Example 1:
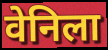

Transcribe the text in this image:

वेनिला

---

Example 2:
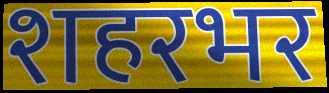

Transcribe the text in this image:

शहरभर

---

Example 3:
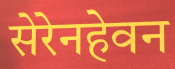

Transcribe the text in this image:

सेरेनहेवन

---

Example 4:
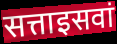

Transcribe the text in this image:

सत्ताइसवां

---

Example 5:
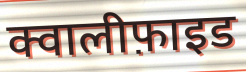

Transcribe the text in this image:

क्वालीफ़ाइड